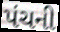
પંચની